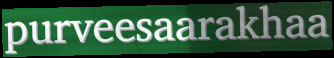
purveesaarakhaa